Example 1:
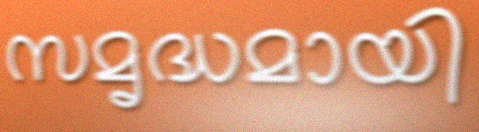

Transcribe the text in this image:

സമൃദ്ധമായി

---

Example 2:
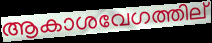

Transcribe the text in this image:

ആകാശവേഗത്തില്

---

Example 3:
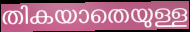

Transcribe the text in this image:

തികയാതെയുള്ള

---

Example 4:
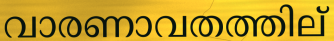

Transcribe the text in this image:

വാരണാവതത്തില്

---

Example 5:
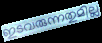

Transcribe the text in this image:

ഇടവരുന്നതുമില്ല